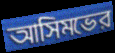
আসিমভের